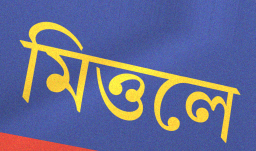
মিত্তলে